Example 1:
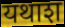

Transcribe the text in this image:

यथाश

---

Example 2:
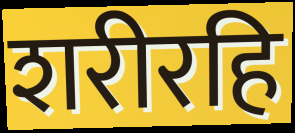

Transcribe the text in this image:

शरीरहि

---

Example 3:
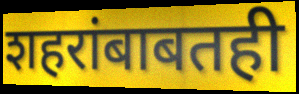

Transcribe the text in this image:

शहरांबाबतही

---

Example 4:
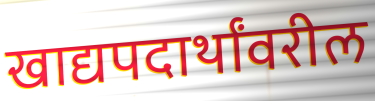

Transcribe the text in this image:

खाद्यपदार्थांवरील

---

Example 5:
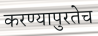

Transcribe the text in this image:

करण्यापुरतेच